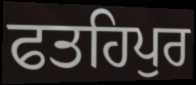
ਫਤਹਿਪੁਰ